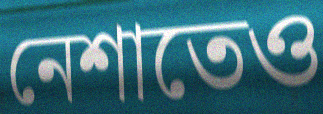
নেশাতেও